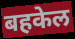
बहकेल